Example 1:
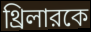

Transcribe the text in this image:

থ্রিলারকে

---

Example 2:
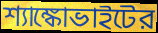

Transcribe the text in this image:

শ্যাঙ্কোভাইটের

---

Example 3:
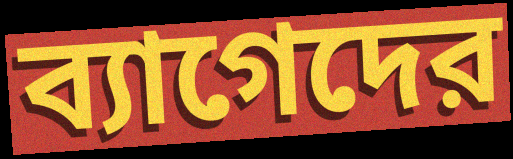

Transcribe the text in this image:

ব্যাগেদের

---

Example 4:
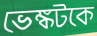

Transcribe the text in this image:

ভেঙ্কটকে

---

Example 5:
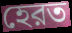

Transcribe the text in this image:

হেরত